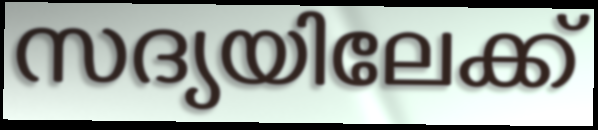
സദ്യയിലേക്ക്